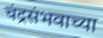
चंद्रसंभवाच्या